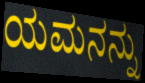
ಯಮನನ್ನು